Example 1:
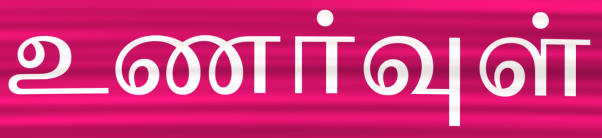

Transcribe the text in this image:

உணர்வுள்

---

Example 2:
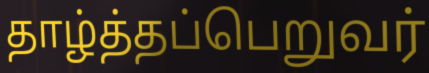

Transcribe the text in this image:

தாழ்த்தப்பெறுவர்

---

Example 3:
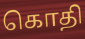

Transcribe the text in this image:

கொதி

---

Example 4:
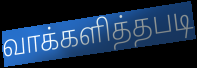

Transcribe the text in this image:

வாக்களித்தபடி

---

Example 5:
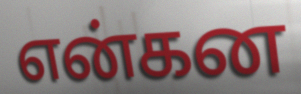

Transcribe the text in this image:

என்கன